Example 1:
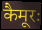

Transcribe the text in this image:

कैमूरः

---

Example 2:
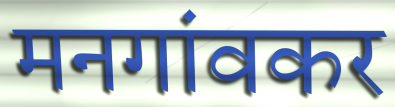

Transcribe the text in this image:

मनगांवकर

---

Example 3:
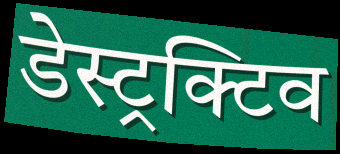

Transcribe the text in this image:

डेस्ट्रक्टिव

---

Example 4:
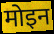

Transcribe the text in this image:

मोइन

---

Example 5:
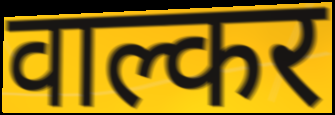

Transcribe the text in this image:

वाल्कर